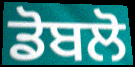
ਡੋਬਲੋ